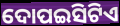
ଦୋପଇସିଟିଏ